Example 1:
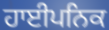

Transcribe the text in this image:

ਹਾਈਪਨਿਕ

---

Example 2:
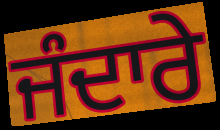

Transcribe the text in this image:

ਜੰਦਾਰੇ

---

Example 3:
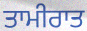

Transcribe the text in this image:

ਤਾਮੀਰਾਤ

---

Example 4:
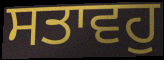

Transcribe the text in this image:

ਸਤਾਵਹੁ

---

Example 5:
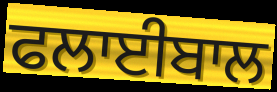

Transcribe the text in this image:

ਫਲਾਈਬਾਲ